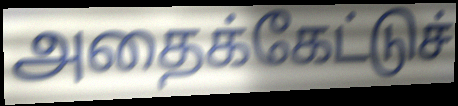
அதைக்கேட்டுச்